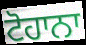
ਟੋਹਾਨਾ